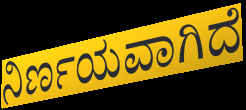
ನಿರ್ಣಯವಾಗಿದೆ